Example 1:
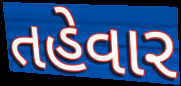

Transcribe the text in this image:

તહેવાર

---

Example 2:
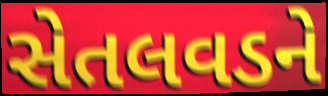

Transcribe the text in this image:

સેતલવડને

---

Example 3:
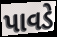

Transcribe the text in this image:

પાવડે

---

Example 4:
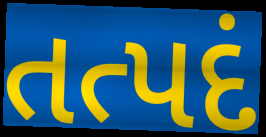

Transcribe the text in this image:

તત્પદં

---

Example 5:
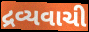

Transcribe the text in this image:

દ્રવ્યવાચી